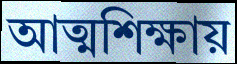
আত্মশিক্ষায়